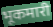
भूकमारी